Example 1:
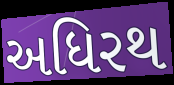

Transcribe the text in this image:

અધિરથ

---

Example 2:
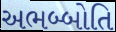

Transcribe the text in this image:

અભબ્બોતિ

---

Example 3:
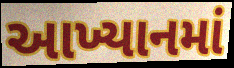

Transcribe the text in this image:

આખ્યાનમાં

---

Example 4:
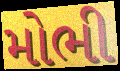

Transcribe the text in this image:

મોભી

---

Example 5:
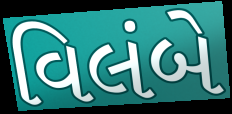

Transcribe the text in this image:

વિલંબે